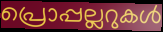
പ്രൊപ്പല്ലറുകൾ